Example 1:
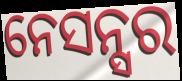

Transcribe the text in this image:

ନେସନ୍ସର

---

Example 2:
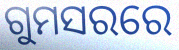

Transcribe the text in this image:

ଗୁମସରରେ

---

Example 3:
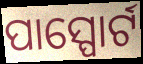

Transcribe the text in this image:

ପାସ୍ପୋର୍ଟ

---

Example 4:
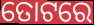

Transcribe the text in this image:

ତୋଟରେ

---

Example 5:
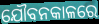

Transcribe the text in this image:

ଯୌବନକାଳରେ